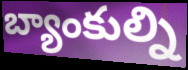
బ్యాంకుల్ని